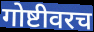
गोष्टीवरच